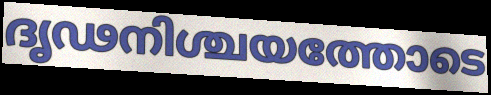
ദൃഢനിശ്ചയത്തോടെ